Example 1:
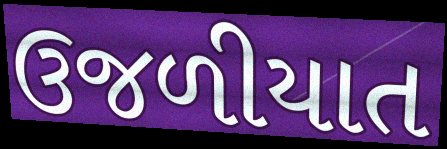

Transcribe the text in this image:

ઉજળીયાત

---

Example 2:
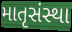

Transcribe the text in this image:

માતૃસંસ્થા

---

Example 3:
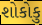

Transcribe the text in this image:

શોકોકુ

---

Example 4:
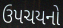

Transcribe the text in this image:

ઉપચયનો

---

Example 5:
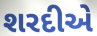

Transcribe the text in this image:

શરદીએ